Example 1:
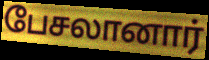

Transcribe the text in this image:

பேசலானார்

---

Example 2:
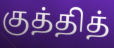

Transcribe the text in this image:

குத்தித்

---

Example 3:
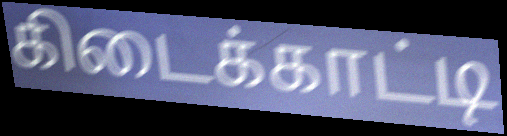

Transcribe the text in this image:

கிடைக்காட்டி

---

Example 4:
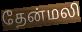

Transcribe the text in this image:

தேன்மலி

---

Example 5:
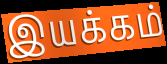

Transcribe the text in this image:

இயக்கம்